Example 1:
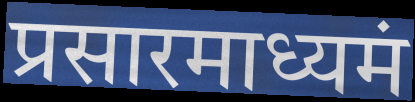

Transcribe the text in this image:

प्रसारमाध्यमं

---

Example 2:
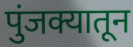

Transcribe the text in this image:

पुंजक्यातून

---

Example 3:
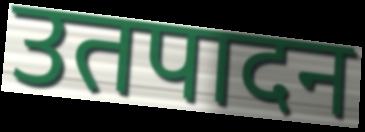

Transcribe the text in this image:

उतपादन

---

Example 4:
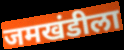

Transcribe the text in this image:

जमखंडीला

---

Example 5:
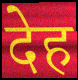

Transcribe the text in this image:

देह